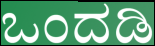
ಒಂದಡಿ